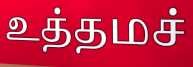
உத்தமச்